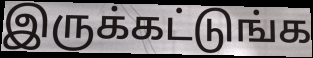
இருக்கட்டுங்க